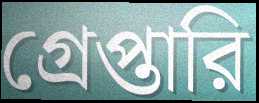
গ্রেপ্তারি